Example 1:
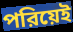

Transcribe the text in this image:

পরিয়েই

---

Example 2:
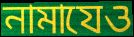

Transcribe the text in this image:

নামাযেও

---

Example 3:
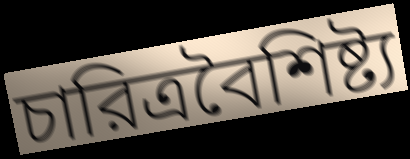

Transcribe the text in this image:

চারিত্রবৈশিষ্ট্য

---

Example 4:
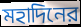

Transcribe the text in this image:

মহাদিনের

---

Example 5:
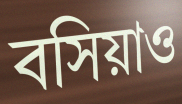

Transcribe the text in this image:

বসিয়াও